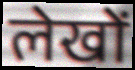
लेखों